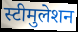
स्टीमुलेशन